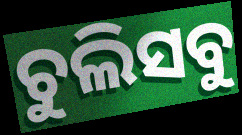
ଚୁଲିସବୁ